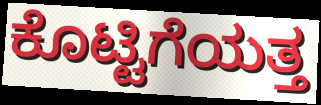
ಕೊಟ್ಟಿಗೆಯತ್ತ